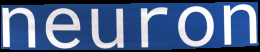
neuron